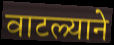
वाटल्याने